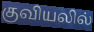
குவியலில்